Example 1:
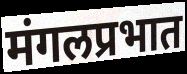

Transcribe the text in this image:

मंगलप्रभात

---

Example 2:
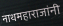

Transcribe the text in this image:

नाथमहाराजांनी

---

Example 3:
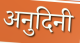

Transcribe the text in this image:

अनुदिनी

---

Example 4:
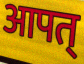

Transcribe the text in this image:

आपत्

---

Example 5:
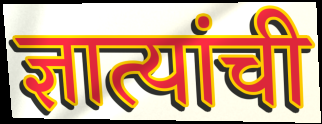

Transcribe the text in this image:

ज्ञात्यांची